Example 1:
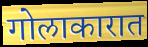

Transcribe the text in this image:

गोलाकारात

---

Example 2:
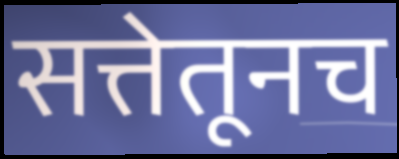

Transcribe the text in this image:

सत्तेतूनच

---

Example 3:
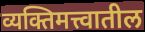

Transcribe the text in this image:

व्यक्तिमत्त्वातील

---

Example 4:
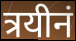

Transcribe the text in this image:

त्रयीनं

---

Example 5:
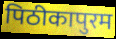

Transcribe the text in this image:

पिठीकापुरम